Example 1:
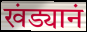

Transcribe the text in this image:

खंड्यानं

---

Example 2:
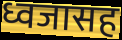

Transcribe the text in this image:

ध्वजासह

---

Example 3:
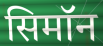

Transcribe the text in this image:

सिमॉन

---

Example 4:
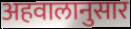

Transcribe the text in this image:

अहवालानुसार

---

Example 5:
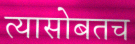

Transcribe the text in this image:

त्यासोबतच